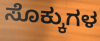
ಸೊಕ್ಕುಗಳ